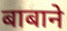
बाबाने